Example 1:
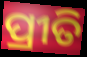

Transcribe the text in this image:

ପ୍ରୀତି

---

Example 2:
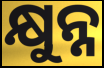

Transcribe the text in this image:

କ୍ଷୁନ୍ନ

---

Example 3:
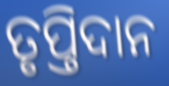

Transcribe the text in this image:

ତୃପ୍ତିଦାନ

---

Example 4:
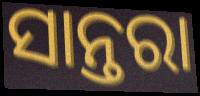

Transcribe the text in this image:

ସାନ୍ତରା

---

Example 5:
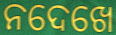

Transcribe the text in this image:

ନଦେଖେ